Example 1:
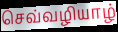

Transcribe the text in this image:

செவ்வழியாழ்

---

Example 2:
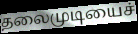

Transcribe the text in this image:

தலைமுடியைச்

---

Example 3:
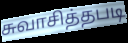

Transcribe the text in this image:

சுவாசித்தபடி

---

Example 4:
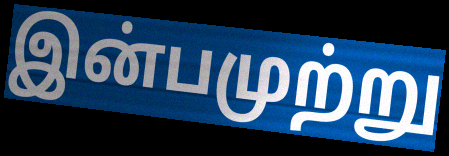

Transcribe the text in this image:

இன்பமுற்று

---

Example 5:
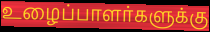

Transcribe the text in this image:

உழைப்பாளர்களுக்கு